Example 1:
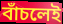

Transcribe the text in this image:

বাঁচলেই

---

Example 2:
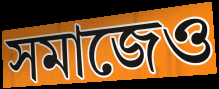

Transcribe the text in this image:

সমাজেও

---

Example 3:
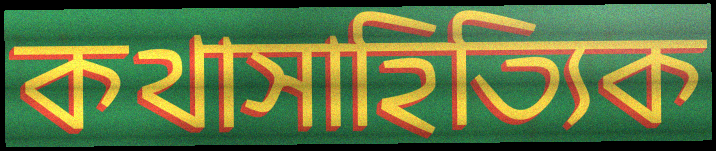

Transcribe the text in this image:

কথাসাহিত্যিক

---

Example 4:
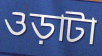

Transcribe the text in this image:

ওড়াটা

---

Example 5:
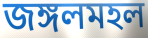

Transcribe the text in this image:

জঙ্গলমহল